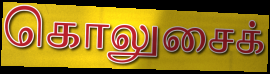
கொலுசைக்